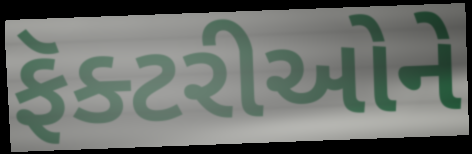
ફૅક્ટરીઓને